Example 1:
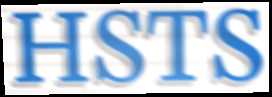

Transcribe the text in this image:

HSTS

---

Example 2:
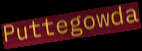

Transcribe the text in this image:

Puttegowda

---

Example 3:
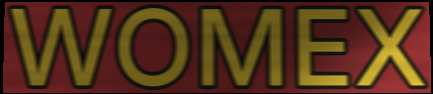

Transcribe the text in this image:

WOMEX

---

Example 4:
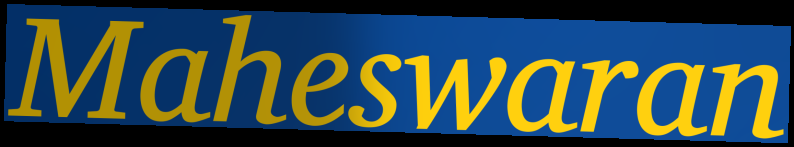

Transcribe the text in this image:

Maheswaran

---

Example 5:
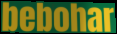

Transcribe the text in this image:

bebohar